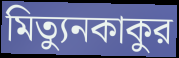
মিত্যুনকাকুর